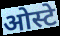
ओस्टे